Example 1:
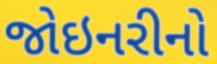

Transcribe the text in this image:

જોઇનરીનો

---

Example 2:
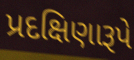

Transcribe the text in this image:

પ્રદક્ષિણારૂપે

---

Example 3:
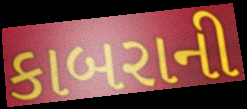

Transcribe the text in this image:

કાબરાની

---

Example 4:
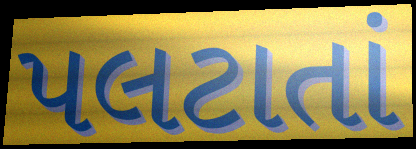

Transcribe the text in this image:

પલટાતાં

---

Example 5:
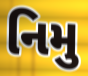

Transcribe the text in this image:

નિમુ